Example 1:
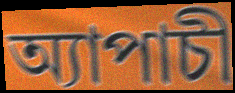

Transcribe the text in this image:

অ্যাপাচী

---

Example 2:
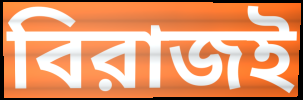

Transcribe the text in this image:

বিরাজই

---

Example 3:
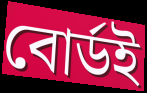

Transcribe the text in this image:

বোর্ডই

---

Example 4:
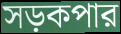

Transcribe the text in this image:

সড়কপার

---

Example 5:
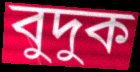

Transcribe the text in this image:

বুদুক